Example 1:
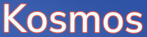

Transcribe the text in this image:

Kosmos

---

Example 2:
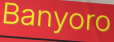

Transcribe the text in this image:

Banyoro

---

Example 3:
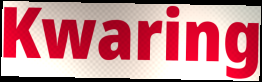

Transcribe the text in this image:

Kwaring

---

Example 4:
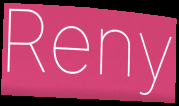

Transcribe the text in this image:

Reny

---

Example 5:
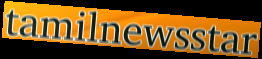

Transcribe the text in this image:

tamilnewsstar